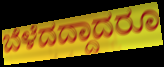
ಬೆಳೆದದ್ದಾದರೂ